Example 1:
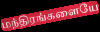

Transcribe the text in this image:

மந்திரங்களையே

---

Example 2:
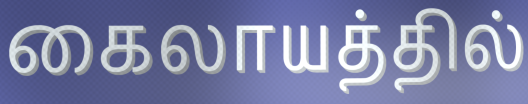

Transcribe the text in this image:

கைலாயத்தில்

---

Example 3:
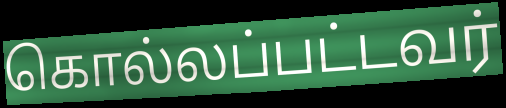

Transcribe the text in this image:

கொல்லப்பட்டவர்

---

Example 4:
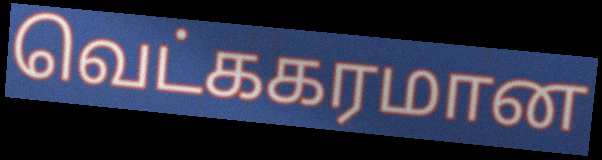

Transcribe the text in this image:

வெட்ககரமான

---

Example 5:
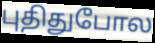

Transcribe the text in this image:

புதிதுபோல